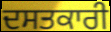
ਦਸਤਕਾਰੀ